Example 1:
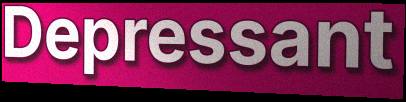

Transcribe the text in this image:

Depressant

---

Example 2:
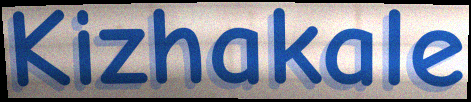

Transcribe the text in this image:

Kizhakale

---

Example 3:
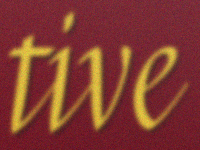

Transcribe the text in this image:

tive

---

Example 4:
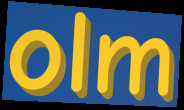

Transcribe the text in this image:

olm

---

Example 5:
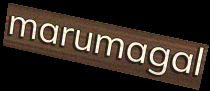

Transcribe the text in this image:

marumagal